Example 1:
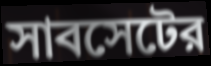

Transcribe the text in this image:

সাবসেটের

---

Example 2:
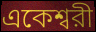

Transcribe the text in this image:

একেশ্বরী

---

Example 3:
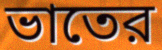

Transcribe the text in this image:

ভাতের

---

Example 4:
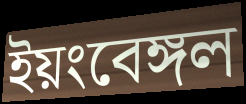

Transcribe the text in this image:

ইয়ংবেঙ্গল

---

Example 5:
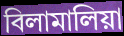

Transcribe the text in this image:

বিলামালিয়া